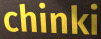
chinki